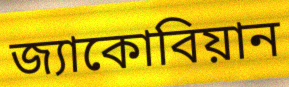
জ্যাকোবিয়ান